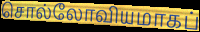
சொல்லோவியமாகப்